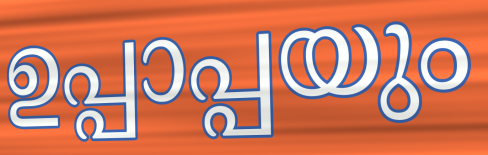
ഉപ്പാപ്പയും